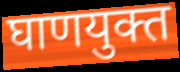
घाणयुक्त